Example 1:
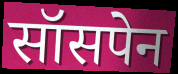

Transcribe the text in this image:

सॉसपेन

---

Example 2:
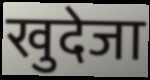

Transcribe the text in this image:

खुदेजा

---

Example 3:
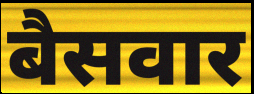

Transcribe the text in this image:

बैसवार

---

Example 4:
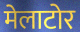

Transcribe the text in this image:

मेलाटोर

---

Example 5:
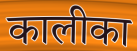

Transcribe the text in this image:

कालीका